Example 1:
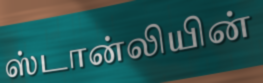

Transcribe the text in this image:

ஸ்டான்லியின்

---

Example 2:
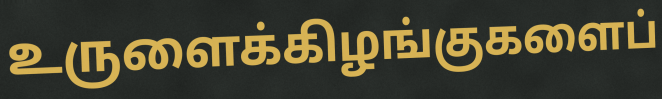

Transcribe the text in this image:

உருளைக்கிழங்குகளைப்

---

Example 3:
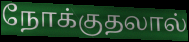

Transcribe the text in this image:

நோக்குதலால்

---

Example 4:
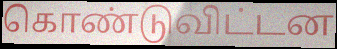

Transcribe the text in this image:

கொண்டுவிட்டன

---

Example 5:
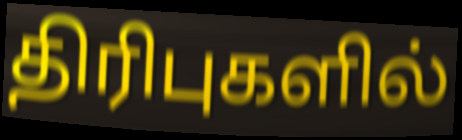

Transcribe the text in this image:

திரிபுகளில்